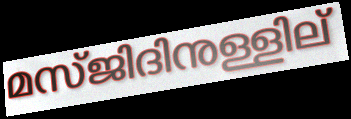
മസ്ജിദിനുള്ളില്